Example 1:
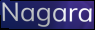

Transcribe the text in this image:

Nagara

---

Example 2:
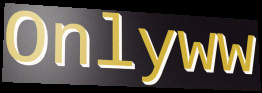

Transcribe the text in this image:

Onlyww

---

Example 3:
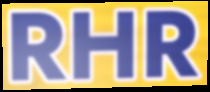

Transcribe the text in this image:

RHR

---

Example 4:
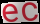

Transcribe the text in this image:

ec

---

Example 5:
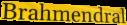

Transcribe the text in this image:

Brahmendral